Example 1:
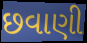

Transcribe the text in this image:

છવાણી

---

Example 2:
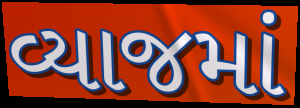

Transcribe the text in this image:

વ્યાજમાં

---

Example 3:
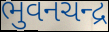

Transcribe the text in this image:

ભુવનચન્દ્ર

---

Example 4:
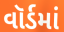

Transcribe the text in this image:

વૉર્ડમાં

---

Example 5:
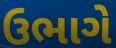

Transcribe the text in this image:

ઉભાગે